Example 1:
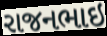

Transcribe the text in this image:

રાજનભાઇ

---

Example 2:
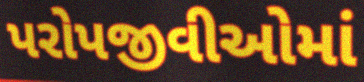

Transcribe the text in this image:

પરોપજીવીઓમાં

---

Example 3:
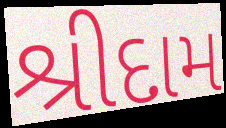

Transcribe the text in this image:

શ્રીદામ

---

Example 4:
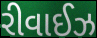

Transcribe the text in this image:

રીવાઈઝ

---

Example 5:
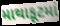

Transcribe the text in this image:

માથાકૂટમાં